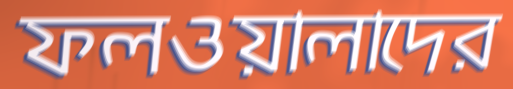
ফলওয়ালাদের